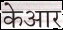
केआर